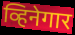
व्हिनेगार